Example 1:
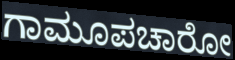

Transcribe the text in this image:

ಗಾಮೂಪಚಾರೋ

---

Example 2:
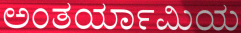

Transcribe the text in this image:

ಅಂತರ್ಯಾಮಿಯ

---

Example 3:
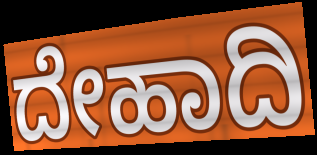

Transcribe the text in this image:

ದೇಹಾದಿ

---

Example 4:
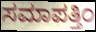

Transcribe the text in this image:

ಸಮಾಪತ್ತಿಂ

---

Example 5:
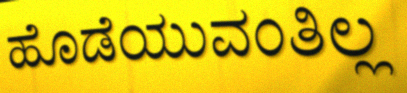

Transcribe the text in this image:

ಹೊಡೆಯುವಂತಿಲ್ಲ